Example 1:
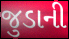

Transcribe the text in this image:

જુડાની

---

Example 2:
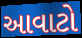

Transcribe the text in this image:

આવાટો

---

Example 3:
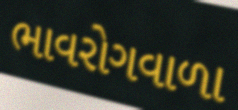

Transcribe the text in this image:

ભાવરોગવાળા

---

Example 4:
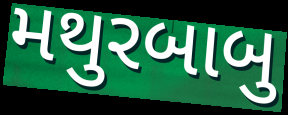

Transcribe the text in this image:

મથુરબાબુ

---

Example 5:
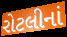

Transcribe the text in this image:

રોટલીનાં